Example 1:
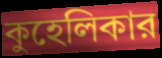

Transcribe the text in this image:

কুহেলিকার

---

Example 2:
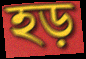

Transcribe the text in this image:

হড়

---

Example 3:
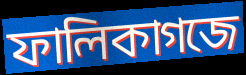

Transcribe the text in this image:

ফালিকাগজে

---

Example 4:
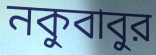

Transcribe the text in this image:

নকুবাবুর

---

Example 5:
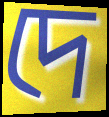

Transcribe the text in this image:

দে